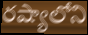
రష్యాలోని